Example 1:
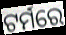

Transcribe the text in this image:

ଟର୍ମରେ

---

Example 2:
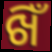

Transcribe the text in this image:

ଖିଁ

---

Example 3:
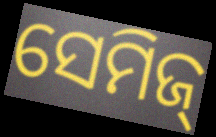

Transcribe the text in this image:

ସେମିଜ୍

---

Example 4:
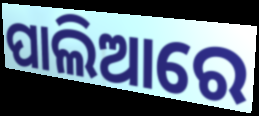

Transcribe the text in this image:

ପାଲିଆରେ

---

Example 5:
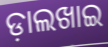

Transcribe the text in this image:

ଡ଼ାଲଖାଇ